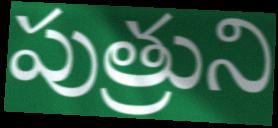
పుత్రుని